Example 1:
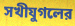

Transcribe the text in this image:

সখীযুগলের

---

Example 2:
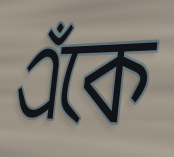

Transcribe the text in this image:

এঁকে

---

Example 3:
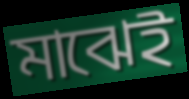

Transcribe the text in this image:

মাঝেই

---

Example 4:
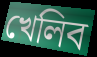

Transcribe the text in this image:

খেলিব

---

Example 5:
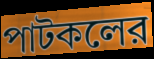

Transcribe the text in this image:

পাটকলের